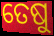
ତେଷୁ